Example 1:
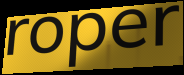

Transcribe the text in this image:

roper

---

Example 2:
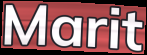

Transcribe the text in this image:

Marit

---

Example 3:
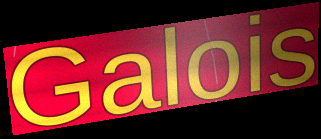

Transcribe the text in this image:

Galois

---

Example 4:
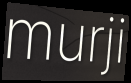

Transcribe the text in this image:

murji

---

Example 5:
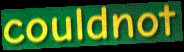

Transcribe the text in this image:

couldnot